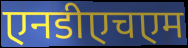
एनडीएचएम